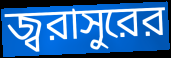
জ্বরাসুরের